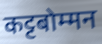
कट्टबोम्मन